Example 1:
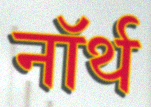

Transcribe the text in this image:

नॉर्थ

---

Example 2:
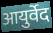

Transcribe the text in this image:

आयुर्वेद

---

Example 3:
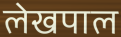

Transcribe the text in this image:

लेखपाल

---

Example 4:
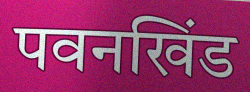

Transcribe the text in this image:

पवनखिंड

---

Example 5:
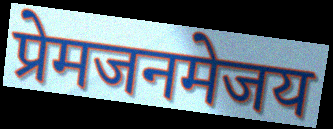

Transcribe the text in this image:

प्रेमजनमेजय